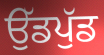
ਉੱਡਪੁੱਡ